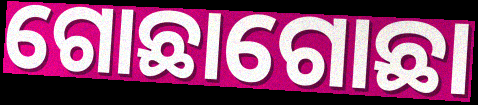
ଗୋଛାଗୋଛା